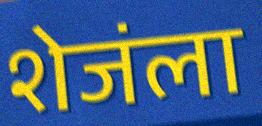
शेजंला